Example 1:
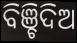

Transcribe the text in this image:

ବିଞ୍ଚିଦିଅ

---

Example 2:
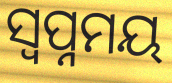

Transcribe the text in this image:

ସ୍ଵପ୍ନମୟ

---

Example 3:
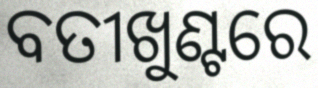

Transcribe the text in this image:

ବତୀଖୁଣ୍ଟରେ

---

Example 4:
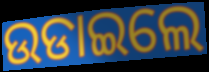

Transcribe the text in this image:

ଉଡାଇଲେ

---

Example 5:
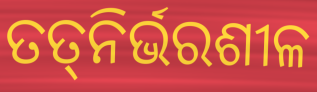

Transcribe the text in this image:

ତତ୍‍ନିର୍ଭରଶୀଳ